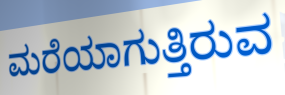
ಮರೆಯಾಗುತ್ತಿರುವ